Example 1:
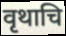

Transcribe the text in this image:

वृथाचि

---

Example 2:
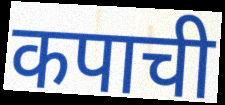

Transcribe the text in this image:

कपाची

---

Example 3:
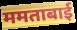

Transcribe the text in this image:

ममताबाई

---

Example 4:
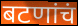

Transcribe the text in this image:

बटणांचं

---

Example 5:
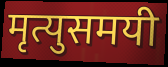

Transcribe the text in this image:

मृत्युसमयी